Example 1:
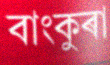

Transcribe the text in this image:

বাংকুৰা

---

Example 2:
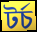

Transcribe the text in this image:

টৰ্চ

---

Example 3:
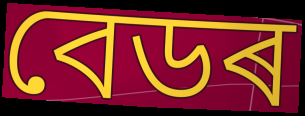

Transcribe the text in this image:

বেডৰ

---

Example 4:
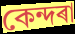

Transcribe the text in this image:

কেন্দৰা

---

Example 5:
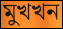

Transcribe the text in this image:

মুখখন